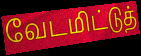
வேடமிட்டுத்